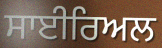
ਸਾਈਰਿਅਲ